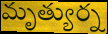
మృత్యుర్న